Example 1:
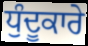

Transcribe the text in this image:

ਧੁੰਦੂਕਾਰੇ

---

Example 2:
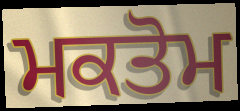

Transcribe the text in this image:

ਮਕਤੋਮ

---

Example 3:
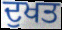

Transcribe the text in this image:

ਦੁਖਤ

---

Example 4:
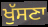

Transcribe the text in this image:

ਖੁੱਸਣਾ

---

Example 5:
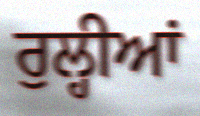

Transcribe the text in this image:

ਰੁਲ੍ਹੀਆਂ